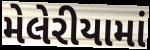
મેલેરીયામાં